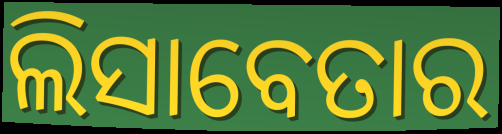
ଲିସାବେତାର